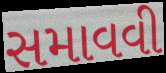
સમાવવી